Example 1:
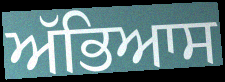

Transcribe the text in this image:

ਅੱਭਿਆਸ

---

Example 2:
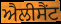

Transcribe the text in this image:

ਐਲੀਸੈਂਟ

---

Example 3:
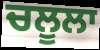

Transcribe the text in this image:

ਚਲੂਲਾ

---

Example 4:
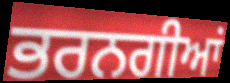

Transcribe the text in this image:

ਭਰਨਗੀਆਂ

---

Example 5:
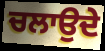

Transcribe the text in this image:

ਚਲਾਉਦੇ